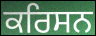
ਕਰਿਸਨ